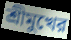
শ্রীমুখের